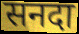
सनदा